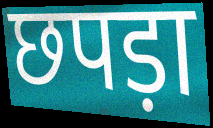
छपड़ा